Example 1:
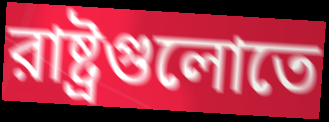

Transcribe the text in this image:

রাষ্ট্রগুলোতে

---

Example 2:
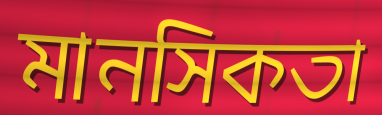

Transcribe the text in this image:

মানসিকতা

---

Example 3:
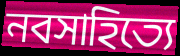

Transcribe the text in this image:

নবসাহিত্যে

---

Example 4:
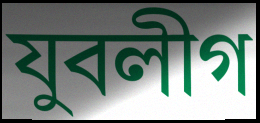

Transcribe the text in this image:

যুবলীগ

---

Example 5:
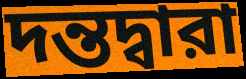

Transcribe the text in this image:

দন্তদ্বারা